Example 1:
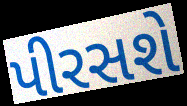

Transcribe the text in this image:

પીરસશે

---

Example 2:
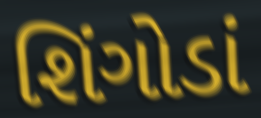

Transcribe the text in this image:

શિંગોડાં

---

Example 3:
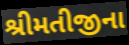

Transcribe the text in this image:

શ્રીમતીજીના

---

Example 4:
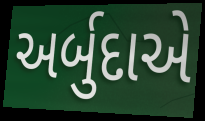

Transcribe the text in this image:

અર્બુદાએ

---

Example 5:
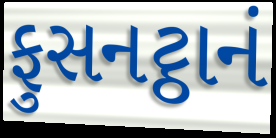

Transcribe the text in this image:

ફુસનટ્ઠાનં